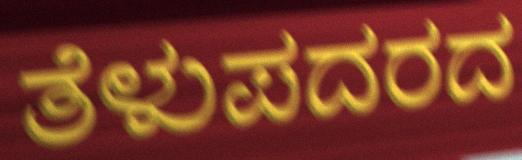
ತೆಳುಪದರದ